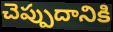
చెప్పుదానికి